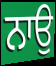
ਨਾਉ